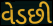
વેડછી